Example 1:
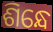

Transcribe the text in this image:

ଶିନ୍ଧେ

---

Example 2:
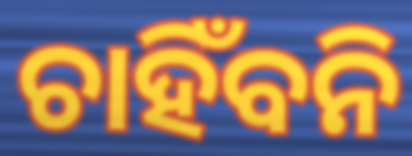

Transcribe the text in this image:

ଚାହିଁବନି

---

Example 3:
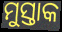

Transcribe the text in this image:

ମୁସ୍ତାକ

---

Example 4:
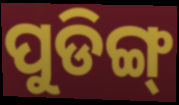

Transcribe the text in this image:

ପୁଡିଙ୍ଗ୍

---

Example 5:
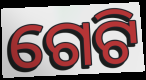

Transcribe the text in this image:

ଗେଟି